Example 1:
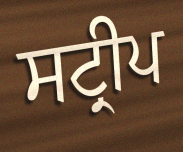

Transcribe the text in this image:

ਸਟ੍ਰੀਪ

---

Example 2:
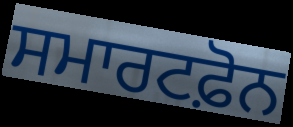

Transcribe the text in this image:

ਸਮਾਰਟਫ਼ੋਨ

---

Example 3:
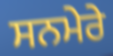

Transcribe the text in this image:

ਸਨਮੇਰੇ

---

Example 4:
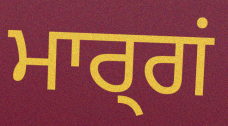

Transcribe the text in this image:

ਮਾਰ੍ਗਂ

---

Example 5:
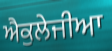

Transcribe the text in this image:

ਐਕੁਲੇਜੀਆ